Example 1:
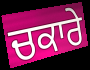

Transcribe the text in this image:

ਚਕਾਰੇ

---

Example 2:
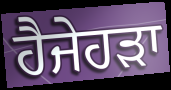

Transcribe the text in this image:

ਹੈਜੇਹੜਾ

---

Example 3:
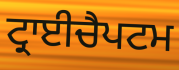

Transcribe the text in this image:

ਟ੍ਰਾਈਚੈਪਟਮ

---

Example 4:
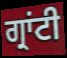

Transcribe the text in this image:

ਗ੍ਰਾਂਟੀ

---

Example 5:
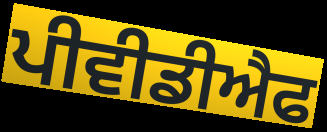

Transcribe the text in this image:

ਪੀਵੀਡੀਐਫ